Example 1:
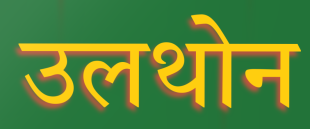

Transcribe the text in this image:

उलथोन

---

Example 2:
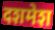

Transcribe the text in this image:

दशमेश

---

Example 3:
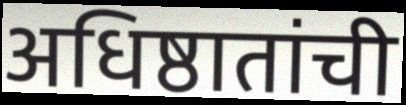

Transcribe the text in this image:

अधिष्ठातांची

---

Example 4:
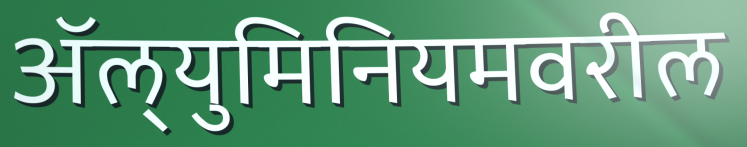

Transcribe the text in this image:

ॲल्युमिनियमवरील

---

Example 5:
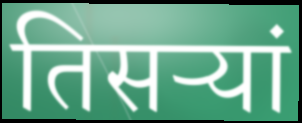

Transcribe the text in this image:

तिसऱ्यां